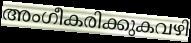
അംഗീകരിക്കുകവഴി